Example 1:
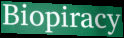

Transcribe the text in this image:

Biopiracy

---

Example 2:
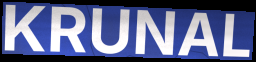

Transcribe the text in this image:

KRUNAL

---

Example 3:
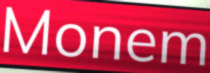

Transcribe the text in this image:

Monem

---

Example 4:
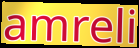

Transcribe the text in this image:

amreli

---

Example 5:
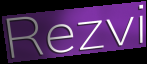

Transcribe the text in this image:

Rezvi